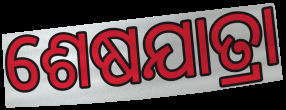
ଶେଷଯାତ୍ରା